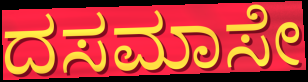
ದಸಮಾಸೇ